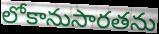
లోకానుసారతను